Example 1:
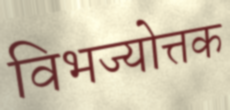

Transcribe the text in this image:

विभज्योत्तक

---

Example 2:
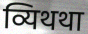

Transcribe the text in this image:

व्यिथथा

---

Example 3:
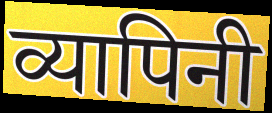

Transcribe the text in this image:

व्यापिनी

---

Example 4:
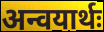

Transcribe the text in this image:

अन्वयार्थः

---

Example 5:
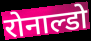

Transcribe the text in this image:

रोनाल्डो